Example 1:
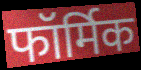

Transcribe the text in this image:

फॉर्मिक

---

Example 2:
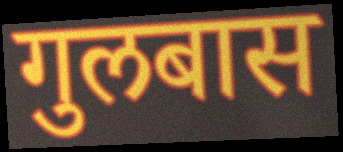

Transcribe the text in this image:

गुलबास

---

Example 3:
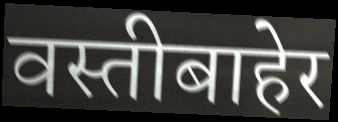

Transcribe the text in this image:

वस्तीबाहेर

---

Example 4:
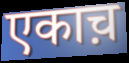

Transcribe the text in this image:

एकाच़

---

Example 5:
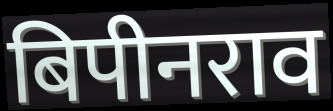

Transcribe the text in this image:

बिपीनराव